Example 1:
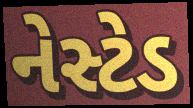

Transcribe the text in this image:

નેસ્ટેડ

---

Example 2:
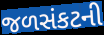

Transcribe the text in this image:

જળસંકટની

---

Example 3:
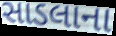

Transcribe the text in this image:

સાડલાના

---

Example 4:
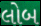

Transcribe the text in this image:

લોબ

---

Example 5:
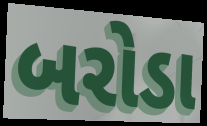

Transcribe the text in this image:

બરોડા